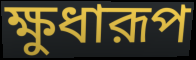
ক্ষুধারূপ